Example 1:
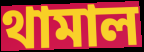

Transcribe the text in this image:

থামাল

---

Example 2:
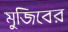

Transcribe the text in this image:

মুজিবের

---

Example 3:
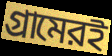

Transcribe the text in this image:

গ্রামেরই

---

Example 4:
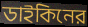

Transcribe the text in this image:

ডাইকিনের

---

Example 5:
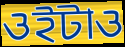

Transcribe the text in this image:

ওইটাও